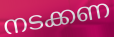
നടക്കണ